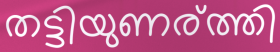
തട്ടിയുണര്ത്തി